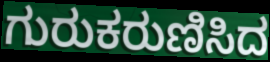
ಗುರುಕರುಣಿಸಿದ